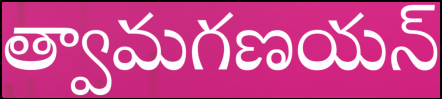
త్వామగణయన్